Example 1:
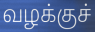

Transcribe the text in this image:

வழக்குச்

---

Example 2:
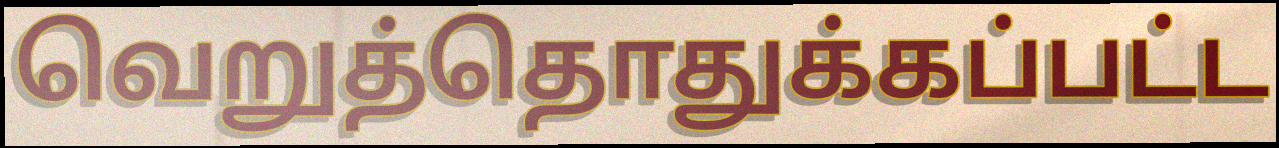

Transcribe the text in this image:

வெறுத்தொதுக்கப்பட்ட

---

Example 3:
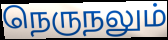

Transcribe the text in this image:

நெருநலும்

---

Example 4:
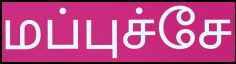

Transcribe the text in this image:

மப்புச்சே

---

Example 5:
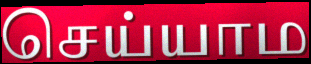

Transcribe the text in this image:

செய்யாம